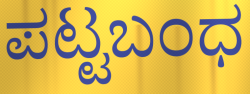
ಪಟ್ಟಬಂಧ